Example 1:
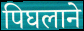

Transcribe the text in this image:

पिघलाने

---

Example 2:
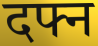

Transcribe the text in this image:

दफ्न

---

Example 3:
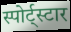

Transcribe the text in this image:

स्पोर्ट्स्टार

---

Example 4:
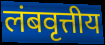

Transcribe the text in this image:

लंबवृत्तीय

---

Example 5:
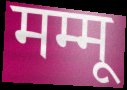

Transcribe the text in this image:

मम्मू